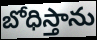
బోధిస్తాను